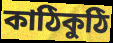
কাঠিকুঠি